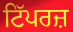
ਟਿੱਪਰਜ਼